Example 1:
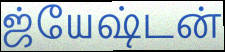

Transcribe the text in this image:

ஜ்யேஷ்டன்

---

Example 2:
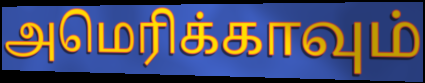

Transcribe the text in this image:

அமெரிக்காவும்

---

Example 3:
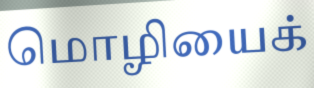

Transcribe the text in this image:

மொழியைக்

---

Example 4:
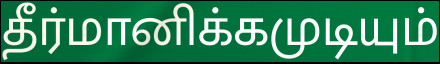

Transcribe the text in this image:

தீர்மானிக்கமுடியும்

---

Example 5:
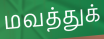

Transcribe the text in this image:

மவத்துக்